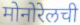
मोनोरेलची